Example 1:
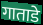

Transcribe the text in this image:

गाताडे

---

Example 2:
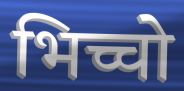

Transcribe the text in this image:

भिच्चो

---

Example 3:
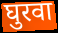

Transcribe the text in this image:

घुरवा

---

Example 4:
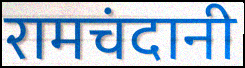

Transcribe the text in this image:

रामचंदानी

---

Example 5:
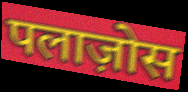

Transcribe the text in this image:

पलाज़ोस